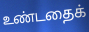
உண்டதைக்